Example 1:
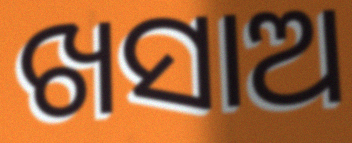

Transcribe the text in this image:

ଖସାଅ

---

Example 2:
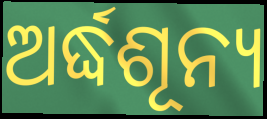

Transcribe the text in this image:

ଅର୍ଦ୍ଧଶୂନ୍ୟ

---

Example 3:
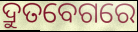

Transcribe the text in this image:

ଦ୍ରୁତବେଗରେ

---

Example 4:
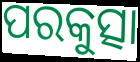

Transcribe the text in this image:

ପରକୁତ୍ସା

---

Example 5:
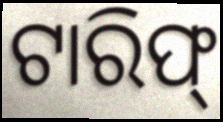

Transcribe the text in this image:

ଟାରିଫ୍